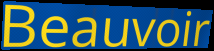
Beauvoir